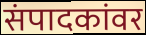
संपादकांवर